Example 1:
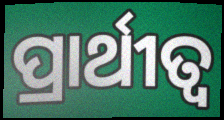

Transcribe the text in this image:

ପ୍ରାର୍ଥୀତ୍ଵ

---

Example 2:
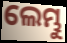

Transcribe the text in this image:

ଲେମ୍ଭୁ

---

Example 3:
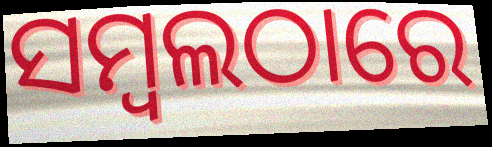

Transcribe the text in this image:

ସମ୍ବଲଠାରେ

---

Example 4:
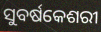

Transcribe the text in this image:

ସୁବର୍ଷକେଶରୀ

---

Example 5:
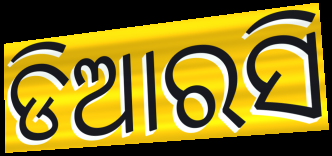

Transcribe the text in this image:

ଡିଆରସି